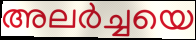
അലർച്ചയെ